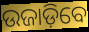
ଉଜାଡ଼ିବେ